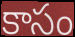
కాసం